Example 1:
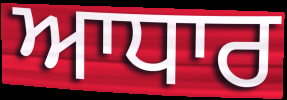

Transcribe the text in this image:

ਆਧਾਰ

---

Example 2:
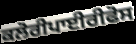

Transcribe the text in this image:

ਕਲੋਰੀਪਾਈਰੀਫੋਸ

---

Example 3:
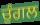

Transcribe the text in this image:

ਚੁੰਗਲ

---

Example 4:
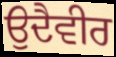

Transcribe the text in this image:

ਉਦੈਵੀਰ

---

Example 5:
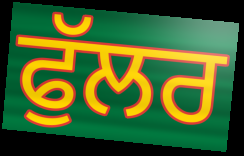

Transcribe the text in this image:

ਫੁੱਲਰ